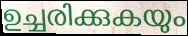
ഉച്ചരിക്കുകയും